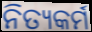
ନିତ୍ଯକର୍ମ